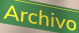
Archivo